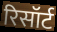
रिसॉर्ट